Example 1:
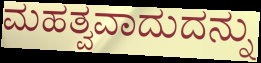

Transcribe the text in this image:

ಮಹತ್ವವಾದುದನ್ನು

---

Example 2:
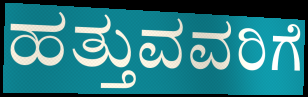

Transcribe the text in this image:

ಹತ್ತುವವರಿಗೆ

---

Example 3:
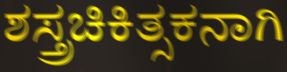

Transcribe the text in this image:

ಶಸ್ತ್ರಚಿಕಿತ್ಸಕನಾಗಿ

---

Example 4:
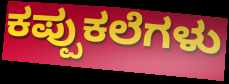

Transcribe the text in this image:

ಕಪ್ಪುಕಲೆಗಳು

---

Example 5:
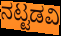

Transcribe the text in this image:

ನಟ್ಟಡವಿ